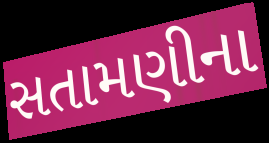
સતામણીના